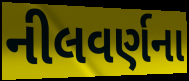
નીલવર્ણના